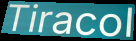
Tiracol